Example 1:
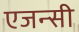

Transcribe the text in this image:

एजन्सी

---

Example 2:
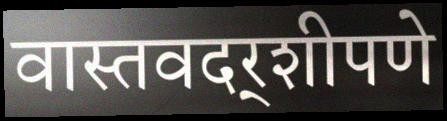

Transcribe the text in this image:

वास्तवदर्शीपणे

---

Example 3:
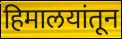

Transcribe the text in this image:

हिमालयांतून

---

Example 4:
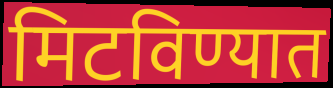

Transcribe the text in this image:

मिटविण्यात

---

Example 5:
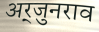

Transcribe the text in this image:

अर्जुनराव